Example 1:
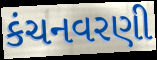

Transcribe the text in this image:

કંચનવરણી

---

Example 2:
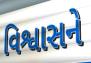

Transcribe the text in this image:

વિશ્વાસને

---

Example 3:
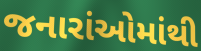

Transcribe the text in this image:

જનારાંઓમાંથી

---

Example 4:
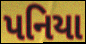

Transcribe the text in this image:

પનિયા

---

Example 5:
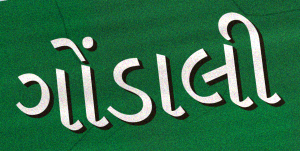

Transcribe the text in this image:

ગોંડાલી